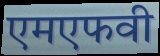
एमएफवी